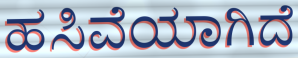
ಹಸಿವೆಯಾಗಿದೆ